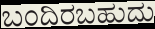
ಬಂದಿರಬಹುದು